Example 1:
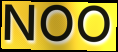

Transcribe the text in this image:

NOO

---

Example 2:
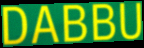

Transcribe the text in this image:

DABBU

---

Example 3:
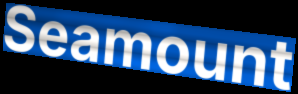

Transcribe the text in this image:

Seamount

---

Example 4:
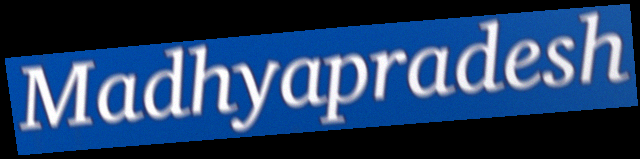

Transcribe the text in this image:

Madhyapradesh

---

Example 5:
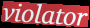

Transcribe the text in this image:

violator